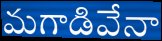
మగాడివేనా